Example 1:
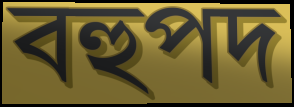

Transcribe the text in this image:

বহুপদ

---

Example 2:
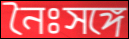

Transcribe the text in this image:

নৈঃসঙ্গে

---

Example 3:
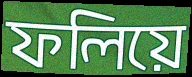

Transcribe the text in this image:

ফলিয়ে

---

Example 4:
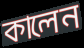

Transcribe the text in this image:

কালেন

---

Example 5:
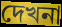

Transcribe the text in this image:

দেখনা